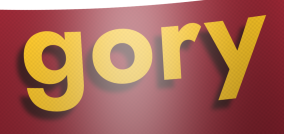
gory